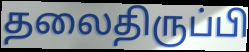
தலைதிருப்பி